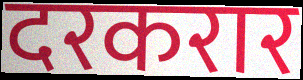
दरकरार